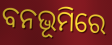
ବନଭୂମିରେ